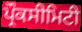
ਪ੍ਰੌਕਸੀਮਿਟੀ